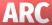
ARC